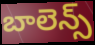
బాలెన్స్